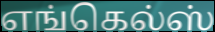
எங்கெல்ஸ்